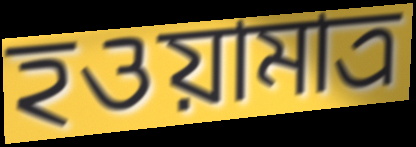
হওয়ামাত্র